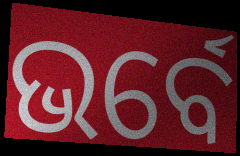
ଭର୍ବେ